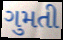
ગુમતી